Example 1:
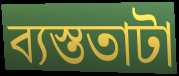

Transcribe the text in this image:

ব্যস্ততাটা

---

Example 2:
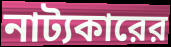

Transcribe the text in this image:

নাট্যকারের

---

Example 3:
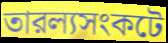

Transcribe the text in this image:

তারল্যসংকটে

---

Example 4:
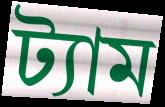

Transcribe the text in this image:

ট্যাম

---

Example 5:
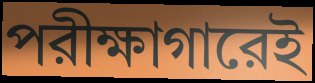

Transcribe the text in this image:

পরীক্ষাগারেই